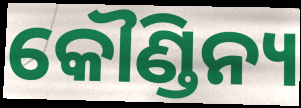
କୌଣ୍ଡିନ୍ୟ